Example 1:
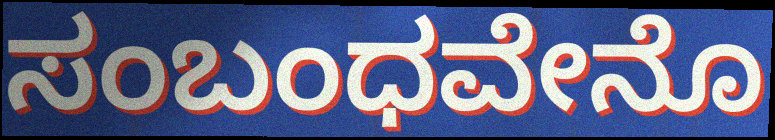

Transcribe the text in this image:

ಸಂಬಂಧವೇನೊ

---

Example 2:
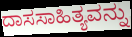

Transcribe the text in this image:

ದಾಸಸಾಹಿತ್ಯವನ್ನು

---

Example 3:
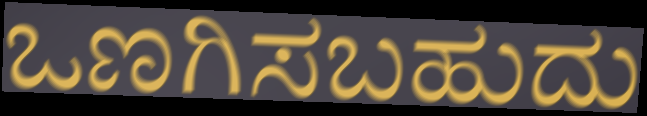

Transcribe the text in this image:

ಒಣಗಿಸಬಹುದು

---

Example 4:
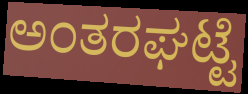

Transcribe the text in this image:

ಅಂತರಘಟ್ಟೆ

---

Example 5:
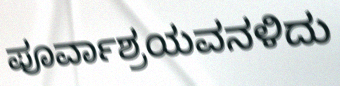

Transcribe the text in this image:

ಪೂರ್ವಾಶ್ರಯವನಳಿದು